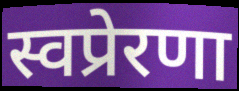
स्वप्रेरणा